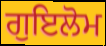
ਗੁਇਲੋਮ